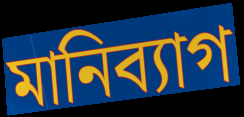
মানিব্যাগ